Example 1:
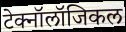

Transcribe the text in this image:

टेक्नॉलॉजिकल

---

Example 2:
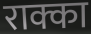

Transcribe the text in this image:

राक्का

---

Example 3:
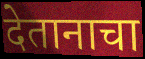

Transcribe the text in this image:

देतानाचा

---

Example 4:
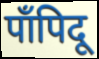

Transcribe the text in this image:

पाँपिदू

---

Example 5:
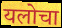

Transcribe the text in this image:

यलोचा